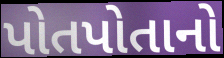
પોતપોતાનો